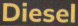
Diesel